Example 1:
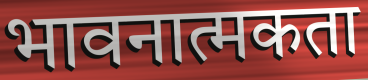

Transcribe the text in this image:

भावनात्मकता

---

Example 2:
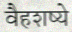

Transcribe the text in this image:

वैहशष्ये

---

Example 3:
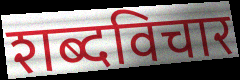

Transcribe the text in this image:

शब्दविचार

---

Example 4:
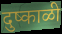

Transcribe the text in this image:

दुष्काळी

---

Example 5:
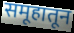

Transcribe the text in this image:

समूहातून